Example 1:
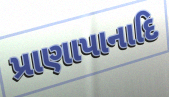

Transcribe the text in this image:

પ્રાણાપાનાદિ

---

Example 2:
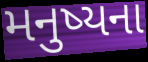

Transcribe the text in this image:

મનુષ્યના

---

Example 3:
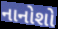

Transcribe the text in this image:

નાનોશો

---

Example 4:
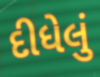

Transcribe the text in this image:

દીધેલું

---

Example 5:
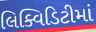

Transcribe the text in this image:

લિક્વિડિટીમાં